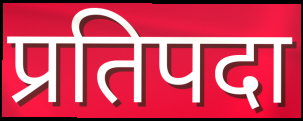
प्रतिपदा